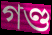
গণ্ড